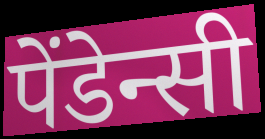
पेंडेन्सी